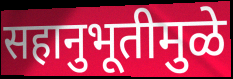
सहानुभूतीमुळे